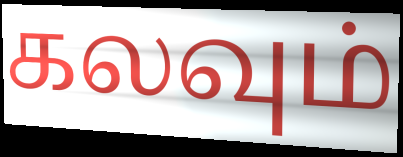
கலவும்